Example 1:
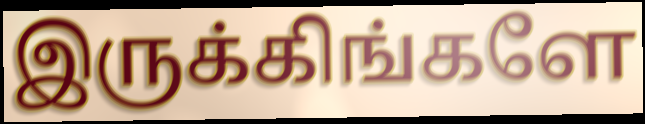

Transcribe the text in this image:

இருக்கிங்களே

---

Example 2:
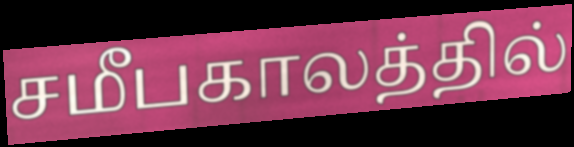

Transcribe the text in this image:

சமீபகாலத்தில்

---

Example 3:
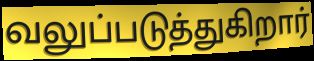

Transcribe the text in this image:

வலுப்படுத்துகிறார்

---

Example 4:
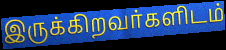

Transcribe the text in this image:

இருக்கிறவர்களிடம்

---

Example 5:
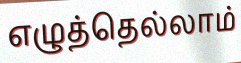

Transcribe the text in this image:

எழுத்தெல்லாம்